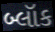
બ્લૉક